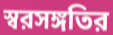
স্বরসঙ্গতির